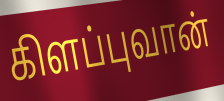
கிளப்புவான்